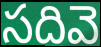
సదివె